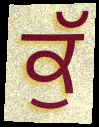
ਕੁੱ